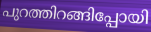
പുറത്തിറങ്ങിപ്പോയി